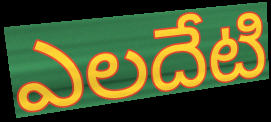
ఎలదేటి